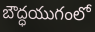
బౌద్ధయుగంలో